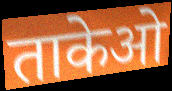
ताकेओ